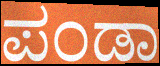
ಪಂಡಾ